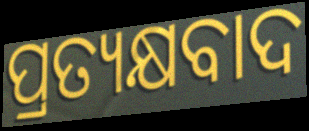
ପ୍ରତ୍ୟକ୍ଷବାଦ